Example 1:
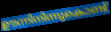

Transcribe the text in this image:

ഊന്നിനിന്നുകൊണ്ട്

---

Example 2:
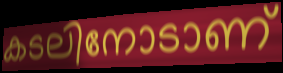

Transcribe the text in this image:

കടലിനോടാണ്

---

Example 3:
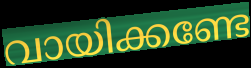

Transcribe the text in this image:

വായിക്കണ്ടേ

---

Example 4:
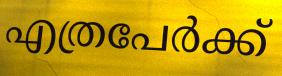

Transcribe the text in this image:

എത്രപേർക്ക്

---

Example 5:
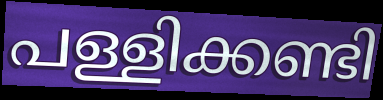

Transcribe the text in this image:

പള്ളിക്കണ്ടി